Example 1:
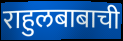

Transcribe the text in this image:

राहुलबाबाची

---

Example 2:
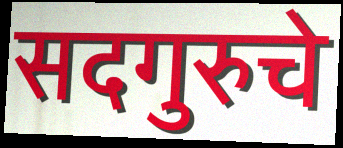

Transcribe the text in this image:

सदगुरुचे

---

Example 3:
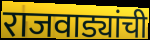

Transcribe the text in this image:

राजवाड्यांची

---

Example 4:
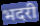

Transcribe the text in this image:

भदरी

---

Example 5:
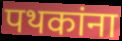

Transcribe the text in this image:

पथकांना